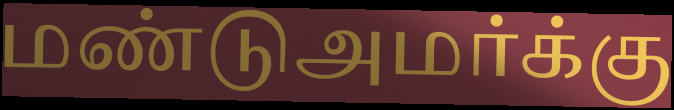
மண்டுஅமர்க்கு